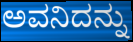
ಅವನಿದನ್ನು